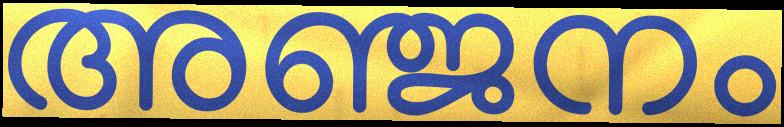
അഞ്ജനം